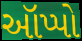
ઑપ્પો